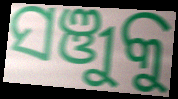
ସଞ୍ଜୁକୁ